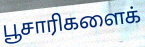
பூசாரிகளைக்